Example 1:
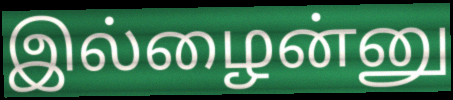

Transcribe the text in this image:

இல்ழைன்னு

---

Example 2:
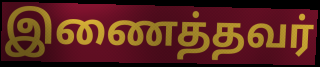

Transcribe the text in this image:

இணைத்தவர்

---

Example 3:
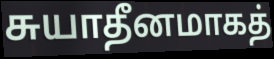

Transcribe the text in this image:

சுயாதீனமாகத்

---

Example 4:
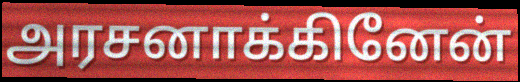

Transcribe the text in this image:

அரசனாக்கினேன்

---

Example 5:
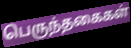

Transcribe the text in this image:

பெருந்தகைகள்